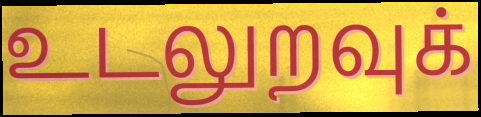
உடலுறவுக்